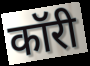
कॉरी